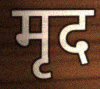
मृद